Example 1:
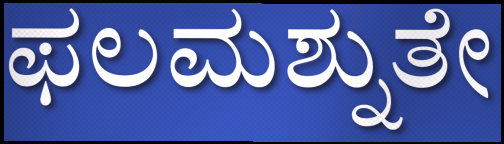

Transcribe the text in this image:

ಫಲಮಶ್ನುತೇ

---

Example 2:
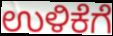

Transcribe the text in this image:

ಉಳಿಕೆಗೆ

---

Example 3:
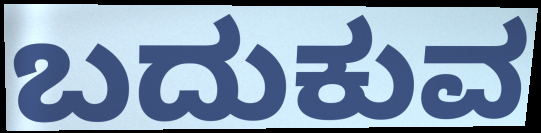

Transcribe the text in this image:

ಬದುಕುವ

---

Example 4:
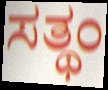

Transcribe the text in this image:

ಸತ್ಥಂ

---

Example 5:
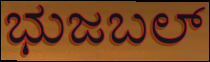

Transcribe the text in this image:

ಭುಜಬಲ್